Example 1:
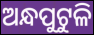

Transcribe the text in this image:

ଅନ୍ଧପୁଟୁଳି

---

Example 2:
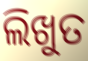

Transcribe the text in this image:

ଲିଖୁତ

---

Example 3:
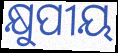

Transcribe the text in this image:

କ୍ଷୁପୀୟ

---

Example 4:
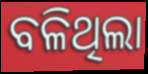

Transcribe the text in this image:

ବଳିଥିଲା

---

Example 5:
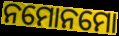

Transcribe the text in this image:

ନମୋନମୋ